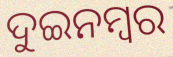
ଦୁଇନମ୍ୱର